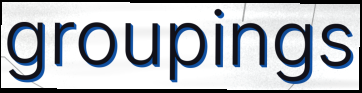
groupings